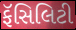
ફૅસિલિટી